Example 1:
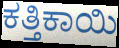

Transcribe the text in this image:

ಕತ್ತಿಕಾಯಿ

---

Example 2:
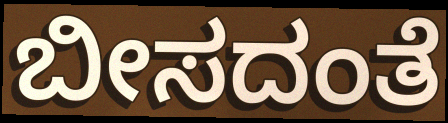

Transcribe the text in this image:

ಬೀಸದಂತೆ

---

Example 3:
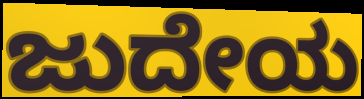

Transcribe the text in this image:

ಜುದೇಯ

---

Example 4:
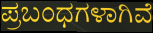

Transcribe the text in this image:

ಪ್ರಬಂಧಗಳಾಗಿವೆ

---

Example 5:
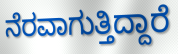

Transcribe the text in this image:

ನೆರವಾಗುತ್ತಿದ್ದಾರೆ